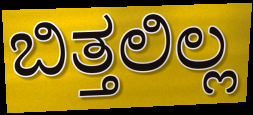
ಬಿತ್ತಲಿಲ್ಲ